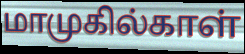
மாமுகில்காள்